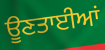
ਊਣਤਾਈਆਂ